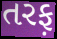
તરફ઼